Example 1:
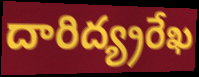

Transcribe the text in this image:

దారిద్య్రరేఖ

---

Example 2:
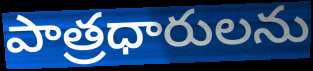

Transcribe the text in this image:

పాత్రధారులను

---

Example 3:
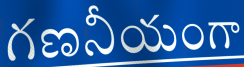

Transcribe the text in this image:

గణనీయంగా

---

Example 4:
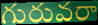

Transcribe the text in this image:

గురువరా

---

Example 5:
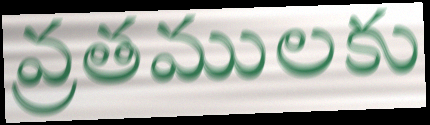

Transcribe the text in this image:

వ్రతములకు